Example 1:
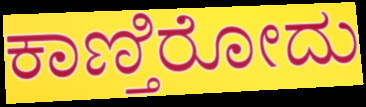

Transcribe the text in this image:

ಕಾಣ್ತಿರೋದು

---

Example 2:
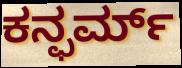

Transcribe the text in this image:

ಕನ್ಫರ್ಮ್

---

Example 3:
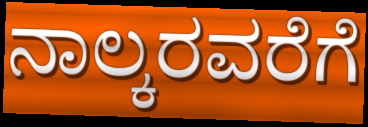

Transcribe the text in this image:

ನಾಲ್ಕರವರೆಗೆ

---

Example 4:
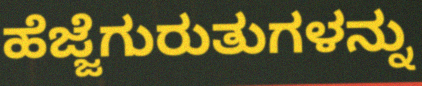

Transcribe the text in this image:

ಹೆಜ್ಜೆಗುರುತುಗಳನ್ನು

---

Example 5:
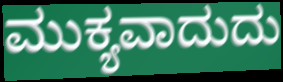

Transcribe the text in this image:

ಮುಕ್ಯವಾದುದು